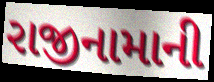
રાજીનામાની